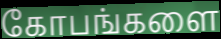
கோபங்களை